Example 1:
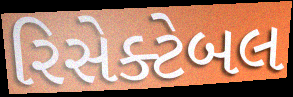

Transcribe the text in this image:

રિસેક્ટેબલ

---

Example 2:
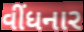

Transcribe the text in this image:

વીંધનાર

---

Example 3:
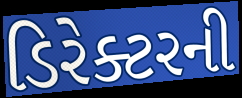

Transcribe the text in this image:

ડિરેક્ટરની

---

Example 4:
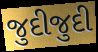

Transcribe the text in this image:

જુદીજુદી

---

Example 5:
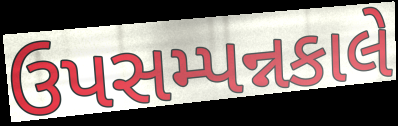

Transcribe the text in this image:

ઉપસમ્પન્નકાલે